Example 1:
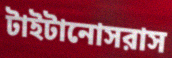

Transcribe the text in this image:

টাইটানোসরাস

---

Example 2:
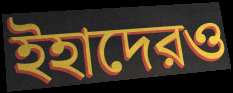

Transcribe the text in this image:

ইহাদেরও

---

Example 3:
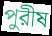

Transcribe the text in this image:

পুরীষ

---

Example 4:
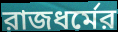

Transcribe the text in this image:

রাজধর্মের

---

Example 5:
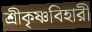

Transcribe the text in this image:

শ্রীকৃষ্ণবিহারী